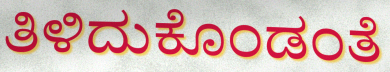
ತಿಳಿದುಕೊಂಡಂತೆ